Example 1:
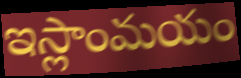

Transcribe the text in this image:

ఇస్లాంమయం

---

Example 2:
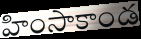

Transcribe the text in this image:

హింసాకాండ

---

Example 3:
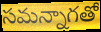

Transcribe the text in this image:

సమన్నాగతో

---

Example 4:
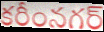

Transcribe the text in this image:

కరీంనగర్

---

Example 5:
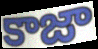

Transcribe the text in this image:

కాజా